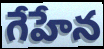
గేహేన